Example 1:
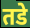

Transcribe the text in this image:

तडे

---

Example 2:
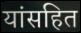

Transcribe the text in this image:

यांसहित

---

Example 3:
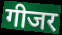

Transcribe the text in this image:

गीजर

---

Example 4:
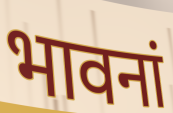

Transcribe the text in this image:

भावनां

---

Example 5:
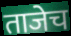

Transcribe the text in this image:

ताजेच